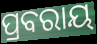
ପ୍ରବରାୟ